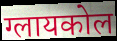
ग्लायकोल